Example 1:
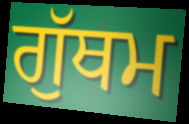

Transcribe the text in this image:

ਗੁੱਥਮ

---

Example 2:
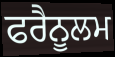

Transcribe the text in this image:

ਫਰੈਨੂਲਮ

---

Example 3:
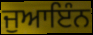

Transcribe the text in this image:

ਜੁਆਇੰਨ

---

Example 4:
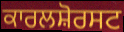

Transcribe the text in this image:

ਕਾਰਲਸ਼ੋਰਸਟ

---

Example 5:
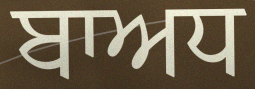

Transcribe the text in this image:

ਬਾਅਧ